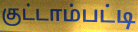
குட்டாம்பட்டி